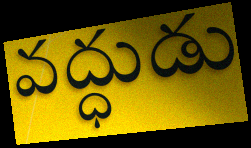
వద్ధుడు